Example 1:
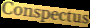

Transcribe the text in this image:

Conspectus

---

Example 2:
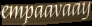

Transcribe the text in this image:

empaavaay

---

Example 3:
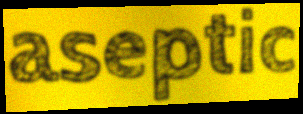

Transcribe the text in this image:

aseptic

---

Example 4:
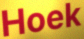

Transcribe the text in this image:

Hoek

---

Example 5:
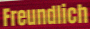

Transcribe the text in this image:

Freundlich